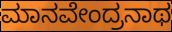
ಮಾನವೇಂದ್ರನಾಥ